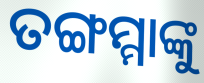
ତଙ୍ଗମ୍ମାଙ୍କୁ